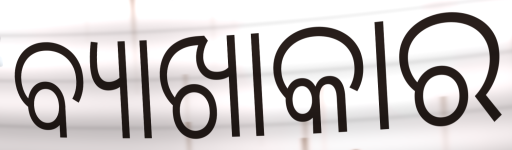
ବ୍ୟାଖାକାର